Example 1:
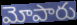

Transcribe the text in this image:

మోపారు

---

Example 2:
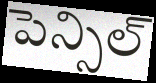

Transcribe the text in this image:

పెన్సిల్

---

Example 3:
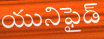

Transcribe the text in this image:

యునిఫైడ్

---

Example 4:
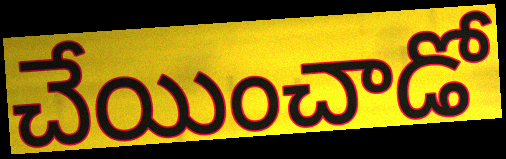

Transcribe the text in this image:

చేయించాడో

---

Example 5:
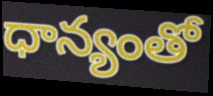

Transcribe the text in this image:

ధాన్యంతో